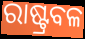
ରାଷ୍ଟ୍ରବଳ